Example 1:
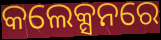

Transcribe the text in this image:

କଲେକ୍ସନରେ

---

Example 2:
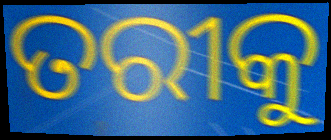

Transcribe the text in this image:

ତରୀକୁ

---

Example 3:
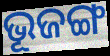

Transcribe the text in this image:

ଭୂଜଙ୍ଗ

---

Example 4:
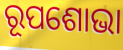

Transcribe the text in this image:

ରୂପଶୋଭା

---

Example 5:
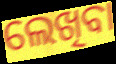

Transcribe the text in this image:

ଲେଖିବା